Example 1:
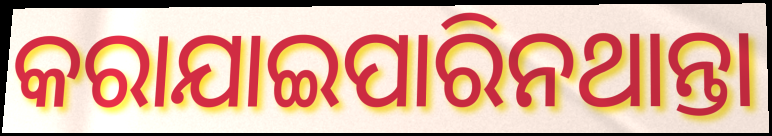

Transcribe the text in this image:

କରାଯାଇପାରିନଥାନ୍ତା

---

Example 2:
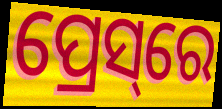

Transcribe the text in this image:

ପ୍ରେସ୍‌ରେ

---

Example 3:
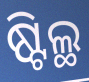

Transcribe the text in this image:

ଷ୍ଟିଲ୍ଥ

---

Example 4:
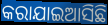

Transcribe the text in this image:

କରାଯାଇଆସିଛି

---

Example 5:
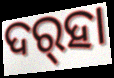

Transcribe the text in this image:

ଦର୍‌ହା